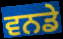
ਵਨਡੇ